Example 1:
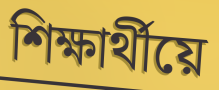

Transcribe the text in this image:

শিক্ষাৰ্থীয়ে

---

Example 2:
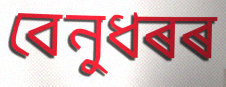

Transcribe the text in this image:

বেনুধৰৰ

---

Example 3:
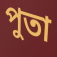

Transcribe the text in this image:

পুতা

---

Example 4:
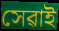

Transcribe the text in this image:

সেৱাই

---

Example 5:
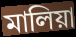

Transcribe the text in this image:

মালিয়া